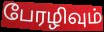
பேரழிவும்